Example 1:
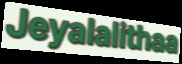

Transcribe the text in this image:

Jeyalalithaa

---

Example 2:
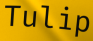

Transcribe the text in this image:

Tulip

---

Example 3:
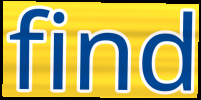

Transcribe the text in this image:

find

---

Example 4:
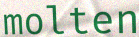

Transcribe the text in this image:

molten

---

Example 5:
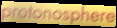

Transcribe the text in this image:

protonosphere